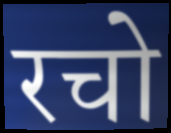
रचो